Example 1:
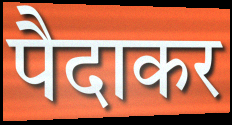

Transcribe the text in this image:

पैदाकर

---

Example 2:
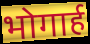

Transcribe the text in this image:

भोगार्ह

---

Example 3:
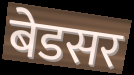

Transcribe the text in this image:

बेडसर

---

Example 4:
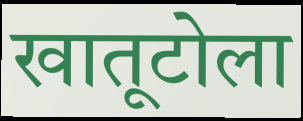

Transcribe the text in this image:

खातूटोला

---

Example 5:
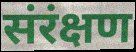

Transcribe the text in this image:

संरंक्षण